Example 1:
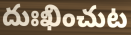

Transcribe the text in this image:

దుఃఖించుట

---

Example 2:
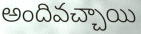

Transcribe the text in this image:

అందివచ్చాయి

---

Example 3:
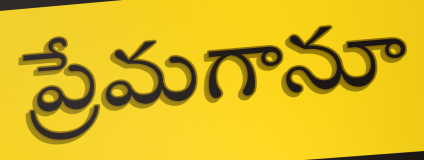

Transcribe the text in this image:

ప్రేమగానూ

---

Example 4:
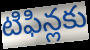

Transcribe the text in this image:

టిఫిన్లకు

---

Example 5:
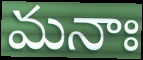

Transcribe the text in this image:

మనాః